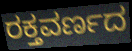
ರಕ್ತವರ್ಣದ